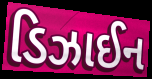
ડિઝાઈન